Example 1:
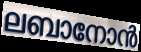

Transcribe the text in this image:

ലബാനോൻ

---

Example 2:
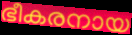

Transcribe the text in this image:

ഭീകരനായ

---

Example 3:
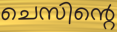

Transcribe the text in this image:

ചെസിന്റെ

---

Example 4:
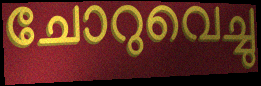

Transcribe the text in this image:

ചോറുവെച്ചു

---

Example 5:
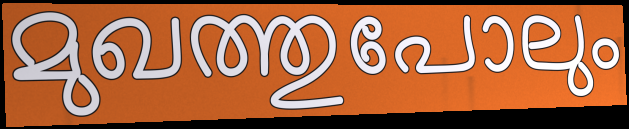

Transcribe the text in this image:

മുഖത്തുപോലും